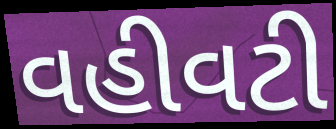
વહીવટી